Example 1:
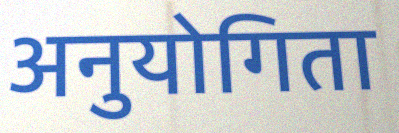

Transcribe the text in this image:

अनुयोगिता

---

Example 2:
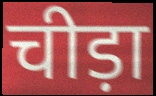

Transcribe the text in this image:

चीड़ा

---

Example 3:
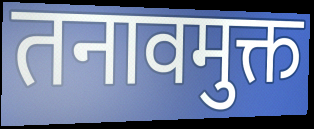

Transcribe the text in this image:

तनावमुक्त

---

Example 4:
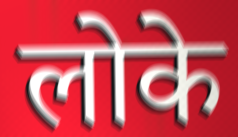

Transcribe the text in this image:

लोके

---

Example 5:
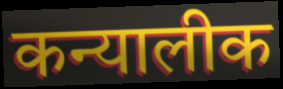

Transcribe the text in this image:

कन्यालीक